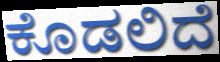
ಕೊಡಲಿದೆ